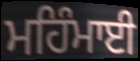
ਮਹਿੰਮਾਈ